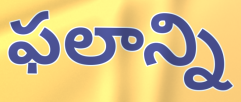
ఫలాన్ని